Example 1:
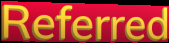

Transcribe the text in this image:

Referred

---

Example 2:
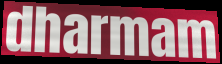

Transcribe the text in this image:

dharmam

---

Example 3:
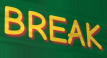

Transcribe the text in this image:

BREAK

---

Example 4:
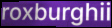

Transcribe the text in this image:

roxburghii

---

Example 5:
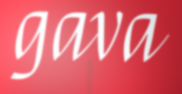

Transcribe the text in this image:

gava